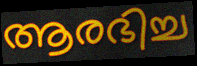
ആരഭിച്ച